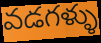
వడగళ్ళు